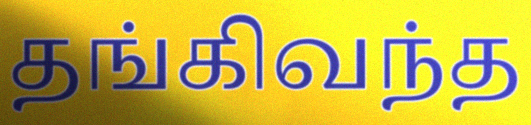
தங்கிவந்த